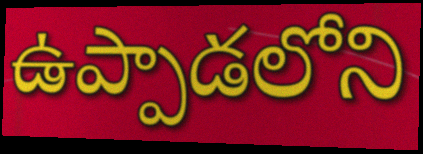
ఉప్పాడలోని